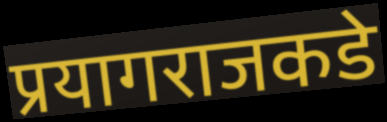
प्रयागराजकडे